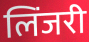
लिंजरी